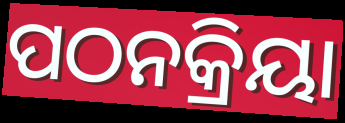
ପଠନକ୍ରିୟା